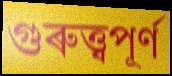
গুৰুত্ত্বপূৰ্ণ